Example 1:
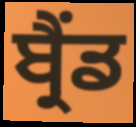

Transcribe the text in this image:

ਬ੍ਰੈਂਡ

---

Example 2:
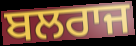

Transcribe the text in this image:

ਬਲਰਾਜ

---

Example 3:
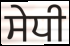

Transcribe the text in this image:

ਸੇਧੀ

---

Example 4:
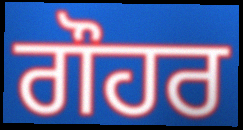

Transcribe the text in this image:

ਗੌਹਰ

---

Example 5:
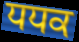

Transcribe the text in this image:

ਧਧਕ